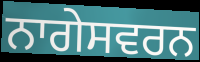
ਨਾਗੇਸਵਰਨ